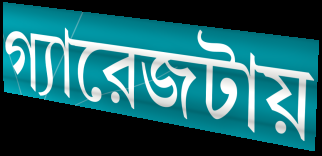
গ্যারেজটায়